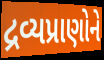
દ્રવ્યપ્રાણોને